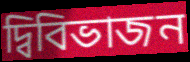
দ্বিবিভাজন